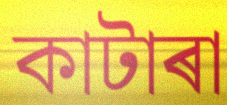
কাটাৰা